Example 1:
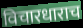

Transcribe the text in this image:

विचारधाराच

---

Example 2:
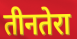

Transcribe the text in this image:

तीनतेरा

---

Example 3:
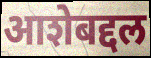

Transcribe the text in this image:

आशेबद्दल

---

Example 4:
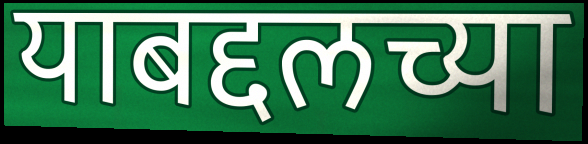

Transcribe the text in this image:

याबद्दलच्या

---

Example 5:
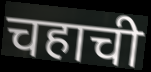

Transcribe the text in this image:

चहाची